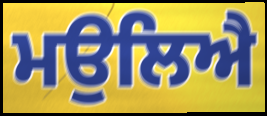
ਮਉਲਿਐ